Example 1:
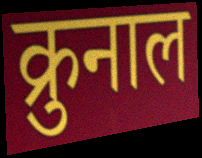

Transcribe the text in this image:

क्रुनाल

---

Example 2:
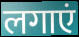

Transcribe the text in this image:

लगाएं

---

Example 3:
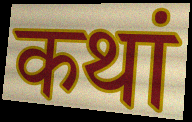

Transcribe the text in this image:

कथां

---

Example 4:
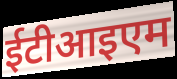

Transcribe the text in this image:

ईटीआइएम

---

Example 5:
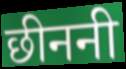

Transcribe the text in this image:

छीननी